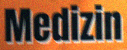
Medizin